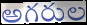
అగరుల